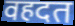
वहदत